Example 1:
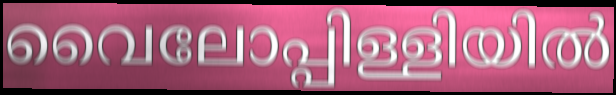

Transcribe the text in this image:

വൈലോപ്പിള്ളിയിൽ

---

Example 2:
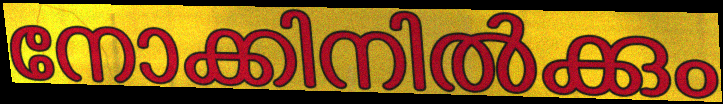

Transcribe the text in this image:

നോക്കിനിൽക്കും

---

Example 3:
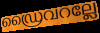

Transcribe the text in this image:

ഡ്രൈവറല്ലേ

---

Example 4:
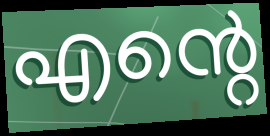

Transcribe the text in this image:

എന്റെ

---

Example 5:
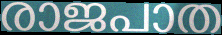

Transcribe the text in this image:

രാജപാത